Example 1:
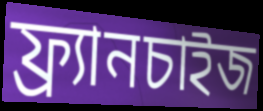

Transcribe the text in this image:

ফ্র্যানচাইজ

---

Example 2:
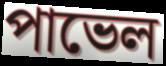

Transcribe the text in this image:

পাভেল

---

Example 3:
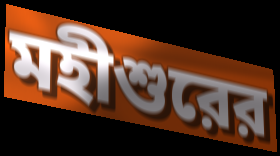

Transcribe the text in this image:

মহীশুরের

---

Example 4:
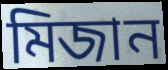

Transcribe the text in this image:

মিজান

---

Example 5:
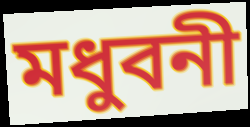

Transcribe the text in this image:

মধুবনী